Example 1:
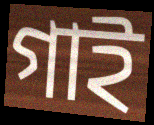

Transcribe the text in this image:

গাই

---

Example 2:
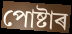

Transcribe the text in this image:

পোষ্টাৰ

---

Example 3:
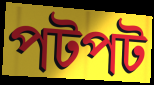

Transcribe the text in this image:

পটপট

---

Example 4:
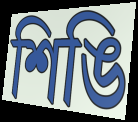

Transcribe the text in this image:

শিঙি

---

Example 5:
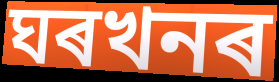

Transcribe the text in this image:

ঘৰখনৰ